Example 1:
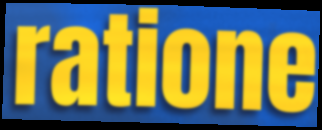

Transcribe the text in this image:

ratione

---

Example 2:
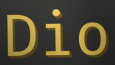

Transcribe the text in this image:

Dio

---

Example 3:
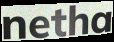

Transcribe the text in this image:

netha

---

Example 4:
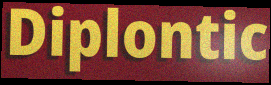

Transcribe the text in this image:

Diplontic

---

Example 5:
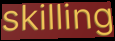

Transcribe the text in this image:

skilling